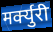
मर्क्युरी